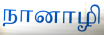
நானாழி